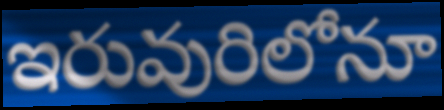
ఇరువురిలోనూ